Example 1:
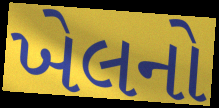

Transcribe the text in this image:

ખેલનો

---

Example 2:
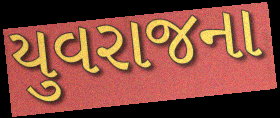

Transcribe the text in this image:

યુવરાજના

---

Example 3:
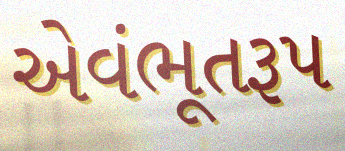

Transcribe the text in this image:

એવંભૂતરૂપ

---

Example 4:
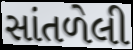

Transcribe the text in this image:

સાંતળેલી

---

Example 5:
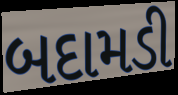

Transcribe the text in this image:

બદામડી